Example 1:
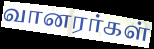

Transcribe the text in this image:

வானரர்கள்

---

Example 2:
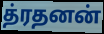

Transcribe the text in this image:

த்ரதனன்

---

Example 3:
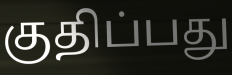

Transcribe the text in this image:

குதிப்பது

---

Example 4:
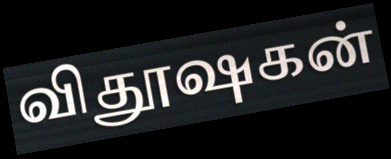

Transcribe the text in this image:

விதூஷகன்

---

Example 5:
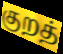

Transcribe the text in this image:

குறத்